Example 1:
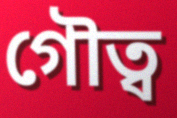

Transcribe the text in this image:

গৌত্ব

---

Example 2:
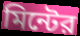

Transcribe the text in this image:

মিন্টের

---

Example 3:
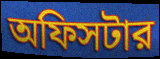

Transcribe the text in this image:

অফিসটার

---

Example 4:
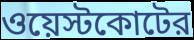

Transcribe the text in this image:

ওয়েস্টকোটের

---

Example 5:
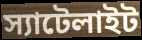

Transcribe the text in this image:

স্যাটেলাইট